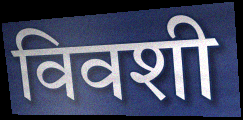
विवशी